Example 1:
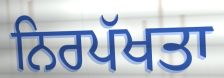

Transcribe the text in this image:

ਨਿਰਪੱਖਤਾ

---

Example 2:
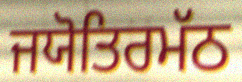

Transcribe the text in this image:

ਜਯੋਤਿਰਮੱਠ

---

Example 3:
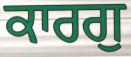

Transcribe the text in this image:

ਕਾਰਗੁ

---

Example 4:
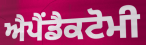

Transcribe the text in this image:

ਐਪੈਂਡੈਕਟੋਮੀ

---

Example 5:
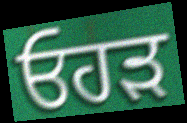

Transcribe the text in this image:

ਓਹੜ